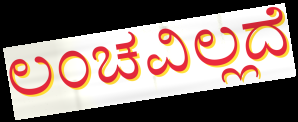
ಲಂಚವಿಲ್ಲದೆ